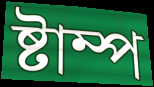
ষ্টাম্প